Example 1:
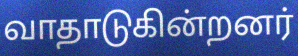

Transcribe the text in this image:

வாதாடுகின்றனர்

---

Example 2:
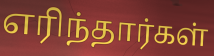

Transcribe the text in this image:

எரிந்தார்கள்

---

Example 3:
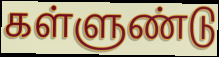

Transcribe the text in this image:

கள்ளுண்டு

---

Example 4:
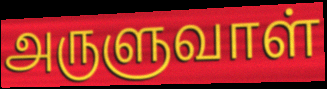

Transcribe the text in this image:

அருளுவாள்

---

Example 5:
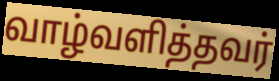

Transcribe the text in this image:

வாழ்வளித்தவர்